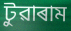
টুৱাৰাম